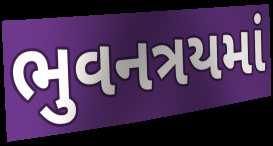
ભુવનત્રયમાં